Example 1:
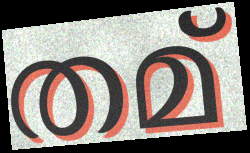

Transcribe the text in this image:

തമ്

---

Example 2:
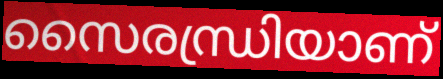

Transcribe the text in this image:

സൈരന്ധ്രിയാണ്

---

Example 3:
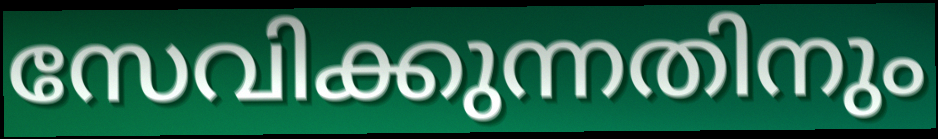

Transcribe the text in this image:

സേവിക്കുന്നതിനും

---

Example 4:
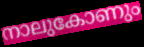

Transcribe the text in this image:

നാലുകോണും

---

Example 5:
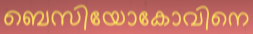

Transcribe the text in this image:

ബെസിയോകോവിനെ